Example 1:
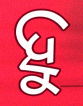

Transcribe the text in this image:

ହୁ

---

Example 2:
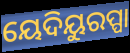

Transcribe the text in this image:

ୟେଦିୟୁରପ୍ପା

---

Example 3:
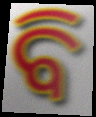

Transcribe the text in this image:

ବି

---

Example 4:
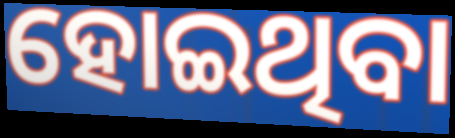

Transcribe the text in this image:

ହୋଇଥିବା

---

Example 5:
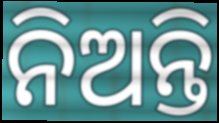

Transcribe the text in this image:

ନିଅନ୍ତି